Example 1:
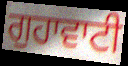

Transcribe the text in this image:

ਗੁਹਾਵਾਟੀ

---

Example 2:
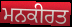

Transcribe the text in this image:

ਮਨਕੀਰਤ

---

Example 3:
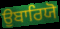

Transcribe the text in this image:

ਉਬਾਰਿਯੋ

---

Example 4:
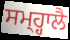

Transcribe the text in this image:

ਸਮ੍ਹ੍ਹਾਲੈ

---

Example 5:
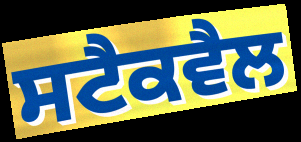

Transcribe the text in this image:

ਸਟੈਕਵੈਲ